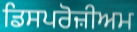
ਡਿਸਪਰੋਜ਼ੀਅਮ